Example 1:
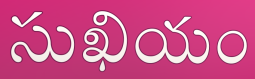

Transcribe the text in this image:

సుఖియం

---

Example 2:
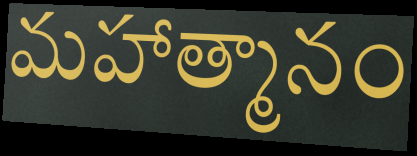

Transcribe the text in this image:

మహాత్మానం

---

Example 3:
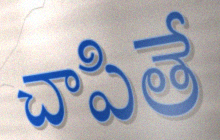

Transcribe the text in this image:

చాపితే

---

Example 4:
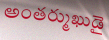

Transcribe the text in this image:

అంతర్ముఖుడై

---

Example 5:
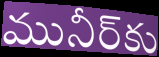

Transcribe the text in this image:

మునీర్‌కు